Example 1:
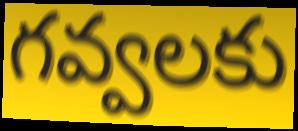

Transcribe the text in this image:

గవ్వలకు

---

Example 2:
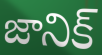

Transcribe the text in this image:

జానిక్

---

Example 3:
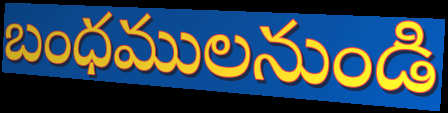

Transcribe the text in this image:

బంధములనుండి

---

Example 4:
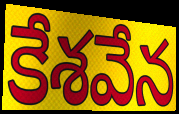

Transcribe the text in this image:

కేశవేన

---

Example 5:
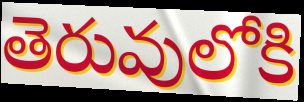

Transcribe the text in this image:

తెరువులోకి